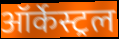
ऑर्केस्ट्रल